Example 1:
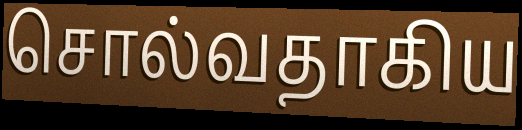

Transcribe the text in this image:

சொல்வதாகிய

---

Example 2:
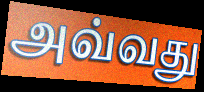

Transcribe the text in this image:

அவ்வது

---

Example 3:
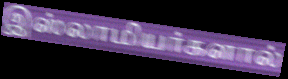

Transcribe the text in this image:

இஸ்லாமியர்களால்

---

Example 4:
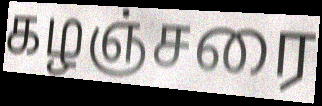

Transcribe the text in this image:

கழஞ்சரை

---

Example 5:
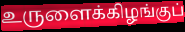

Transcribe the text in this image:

உருளைக்கிழங்குப்